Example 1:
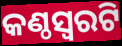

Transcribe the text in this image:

କଣ୍ଠସ୍ଵରଟି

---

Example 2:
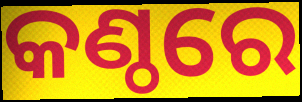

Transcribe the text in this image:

କଣ୍ଠରେ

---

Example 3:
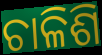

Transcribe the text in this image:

ଚାଳିଶି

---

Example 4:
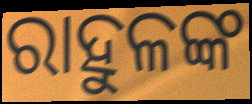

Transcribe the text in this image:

ରାହୁଳଙ୍କ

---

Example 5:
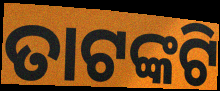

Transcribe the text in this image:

ତାଟଙ୍କଟି